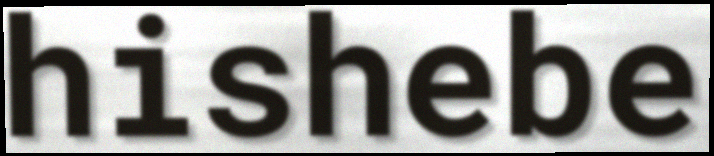
hishebe